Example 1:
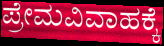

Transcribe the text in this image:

ಪ್ರೇಮವಿವಾಹಕ್ಕೆ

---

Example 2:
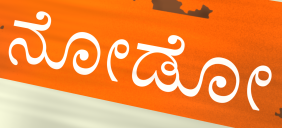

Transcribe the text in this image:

ನೋಡೋ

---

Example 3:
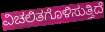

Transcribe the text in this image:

ವಿಚಲಿತಗೊಳಿಸುತ್ತಿದೆ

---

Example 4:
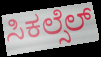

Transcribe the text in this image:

ಸಿಕಲ್ಸೆಲ್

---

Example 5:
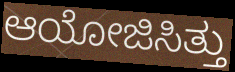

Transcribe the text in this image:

ಆಯೋಜಿಸಿತ್ತು